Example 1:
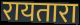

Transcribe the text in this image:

रायतारा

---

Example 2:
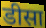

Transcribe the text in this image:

डीसा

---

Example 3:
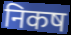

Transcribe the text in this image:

निकष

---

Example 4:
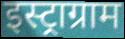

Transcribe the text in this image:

इस्ट्राग्राम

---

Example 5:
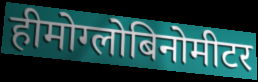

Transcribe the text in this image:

हीमोग्लोबिनोमीटर